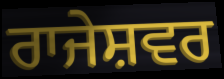
ਰਾਜੇਸ਼ਵਰ